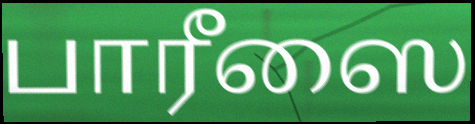
பாரீஸை